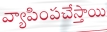
వ్యాపింపచేస్తాయి